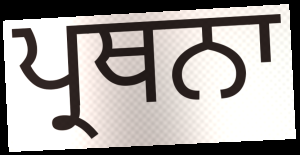
ਪ੍ਰਥਨਾ